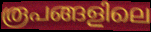
രൂപങ്ങളിലെ